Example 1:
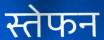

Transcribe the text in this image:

स्तेफन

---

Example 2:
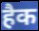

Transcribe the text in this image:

हैक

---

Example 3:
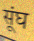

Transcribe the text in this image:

सूंघ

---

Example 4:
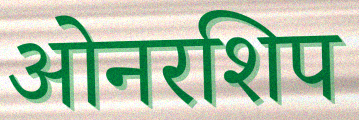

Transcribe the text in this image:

ओनरशिप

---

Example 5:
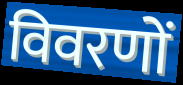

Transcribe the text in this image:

विवरणों